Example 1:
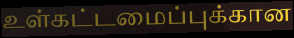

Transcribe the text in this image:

உள்கட்டமைப்புக்கான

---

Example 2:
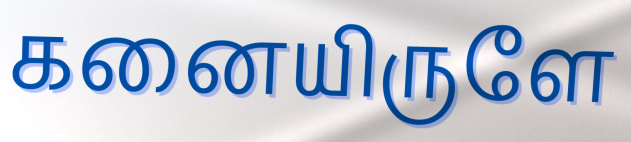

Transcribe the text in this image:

கனையிருளே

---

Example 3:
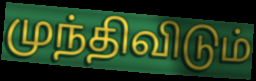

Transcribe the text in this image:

முந்திவிடும்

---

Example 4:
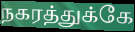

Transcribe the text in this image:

நகரத்துக்கே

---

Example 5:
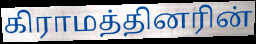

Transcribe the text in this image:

கிராமத்தினரின்